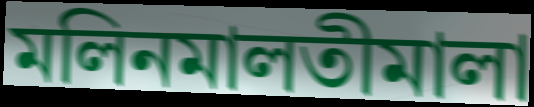
মলিনমালতীমালা